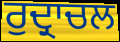
ਰੁਦ੍ਰਾਚਲ